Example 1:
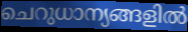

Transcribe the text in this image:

ചെറുധാന്യങ്ങളിൽ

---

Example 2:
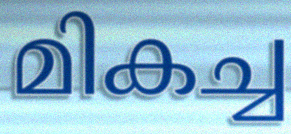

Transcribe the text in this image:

മികച്ച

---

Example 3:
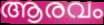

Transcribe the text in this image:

ആരവം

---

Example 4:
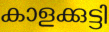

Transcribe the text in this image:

കാളക്കുട്ടി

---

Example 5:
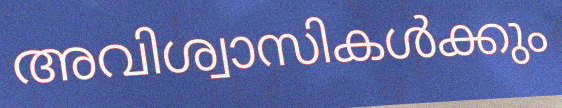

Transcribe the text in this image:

അവിശ്വാസികൾക്കും